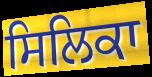
ਸਿਲਿਕਾ